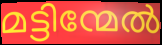
മട്ടിന്മേൽ